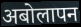
अबोलापन